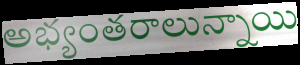
అభ్యంతరాలున్నాయి